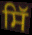
ਸਿੱ